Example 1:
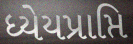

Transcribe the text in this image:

ધ્યેયપ્રાપ્તિ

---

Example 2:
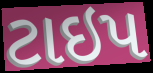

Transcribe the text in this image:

ટાઇપ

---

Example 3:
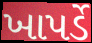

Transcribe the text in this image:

ખાપર્ડે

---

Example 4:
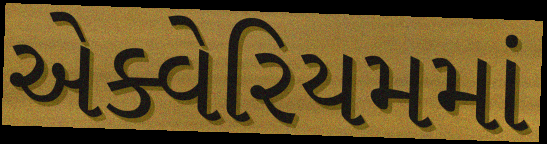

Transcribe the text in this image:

એક્વેરિયમમાં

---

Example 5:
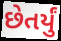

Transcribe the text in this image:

છેતર્યું